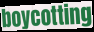
boycotting